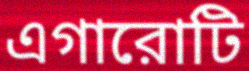
এগারোটি